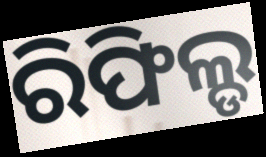
ରିଫିଲ୍ଡ